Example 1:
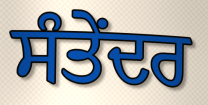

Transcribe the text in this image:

ਸੰਤੇਂਦਰ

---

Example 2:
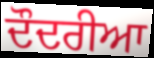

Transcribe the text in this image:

ਦੌਦਰੀਆ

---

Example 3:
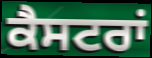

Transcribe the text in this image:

ਕੈਸਟਰਾਂ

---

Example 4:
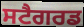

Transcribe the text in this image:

ਸਟੈਗਰਡ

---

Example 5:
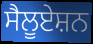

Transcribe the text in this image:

ਸੈਲੂਏਸ਼ਨ